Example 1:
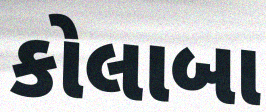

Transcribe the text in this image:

કોલાબા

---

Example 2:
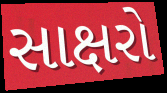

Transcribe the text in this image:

સાક્ષરો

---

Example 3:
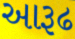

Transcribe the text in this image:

આરૂઢ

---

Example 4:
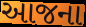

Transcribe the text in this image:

આજના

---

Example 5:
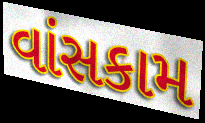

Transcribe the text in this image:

વાંસકામ